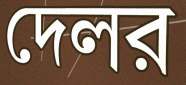
দেলর